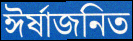
ঈর্ষাজনিত